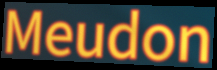
Meudon